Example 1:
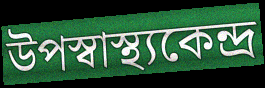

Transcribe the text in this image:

উপস্বাস্থ্যকেন্দ্র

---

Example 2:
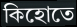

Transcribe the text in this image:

কিহোতে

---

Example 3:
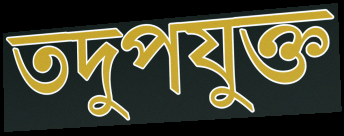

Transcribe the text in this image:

তদুপযুক্ত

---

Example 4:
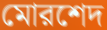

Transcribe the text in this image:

মোরশেদ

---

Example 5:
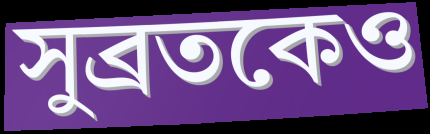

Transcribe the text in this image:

সুব্রতকেও